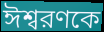
ঈশ্বরণকে